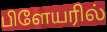
பிளேயரில்